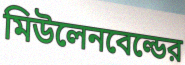
মিউলেনবেল্ডের